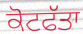
ਕੋਟਫੱਤਾ